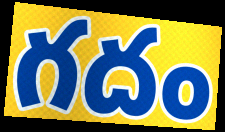
గదం